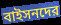
বাইসনদের